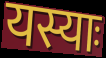
यस्याः